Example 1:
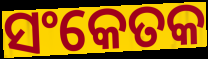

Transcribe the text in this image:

ସଂକେତକ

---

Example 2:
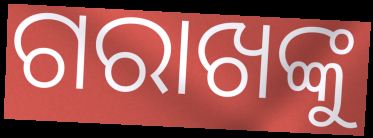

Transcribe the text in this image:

ଗରାଖଙ୍କୁ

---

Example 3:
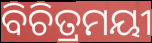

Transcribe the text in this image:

ବିଚିତ୍ରମୟୀ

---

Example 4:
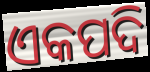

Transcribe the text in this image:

ଏକପଦି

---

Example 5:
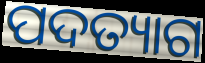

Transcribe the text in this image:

ପଦତ୍ୟାଗ